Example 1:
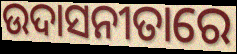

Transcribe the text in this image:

ଉଦାସନୀତାରେ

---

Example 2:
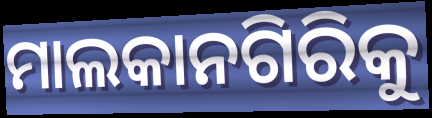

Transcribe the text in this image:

ମାଲକାନଗିରିକୁ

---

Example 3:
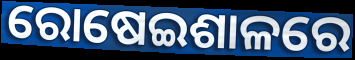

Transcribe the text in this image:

ରୋଷେଇଶାଳରେ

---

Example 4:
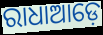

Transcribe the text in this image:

ରାଧାଆଡ଼େ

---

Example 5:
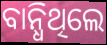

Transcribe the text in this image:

ବାନ୍ଧିଥିଲେ